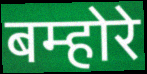
बम्होरे